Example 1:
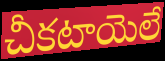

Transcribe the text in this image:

చీకటాయెలే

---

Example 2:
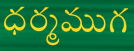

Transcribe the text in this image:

ధర్మముగ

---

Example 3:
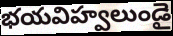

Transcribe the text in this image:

భయవిహ్వలుండై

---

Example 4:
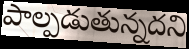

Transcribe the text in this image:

పాల్పడుతున్నదని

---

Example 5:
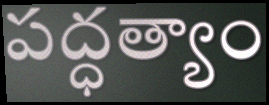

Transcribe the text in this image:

పద్ధత్యాం